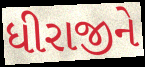
ધીરાજીને